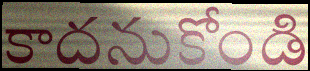
కాదనుకోండి